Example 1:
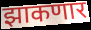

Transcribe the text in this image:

झाकणार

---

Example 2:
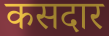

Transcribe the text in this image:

कसदार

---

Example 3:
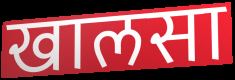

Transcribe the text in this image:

खालसा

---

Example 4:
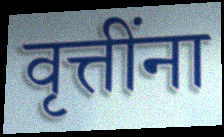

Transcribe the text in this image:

वृत्तींना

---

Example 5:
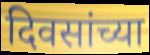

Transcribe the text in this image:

दिवसांच्या